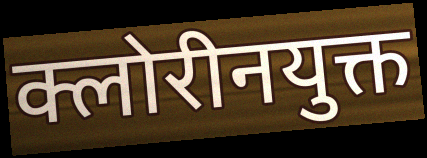
क्लोरीनयुक्त